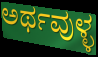
ಅರ್ಥವುಳ್ಳ